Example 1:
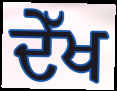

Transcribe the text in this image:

ਦੇੱਖ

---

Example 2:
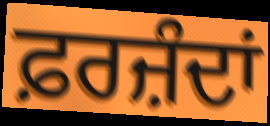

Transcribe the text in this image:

ਫ਼ਰਜ਼ੰਦਾਂ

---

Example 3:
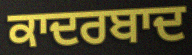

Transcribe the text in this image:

ਕਾਦਰਬਾਦ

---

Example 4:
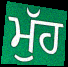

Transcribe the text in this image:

ਮੁੱਹ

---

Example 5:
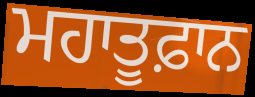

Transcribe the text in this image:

ਮਹਾਤੂਫ਼ਾਨ